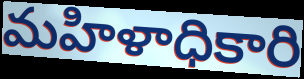
మహిళాధికారి